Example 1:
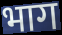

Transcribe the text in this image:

भाग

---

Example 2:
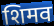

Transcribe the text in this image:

शिमव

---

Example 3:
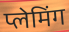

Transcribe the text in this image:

प्लेमिंग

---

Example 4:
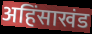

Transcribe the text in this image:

अहिंसाखंड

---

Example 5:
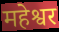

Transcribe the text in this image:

महेश्वर